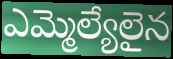
ఎమ్మెల్యేలైన